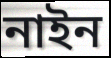
নাইন